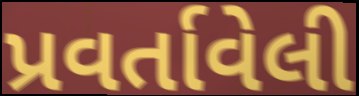
પ્રવર્તાવેલી